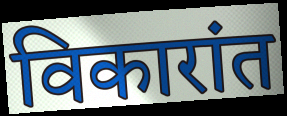
विकारांत